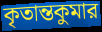
কৃতান্তকুমার